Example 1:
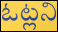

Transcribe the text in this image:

ఓట్లని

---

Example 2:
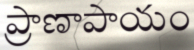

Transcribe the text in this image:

ప్రాణాపాయం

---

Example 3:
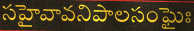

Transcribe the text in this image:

సహైవావనిపాలసంఘైః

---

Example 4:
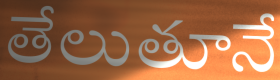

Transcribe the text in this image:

తేలుతూనే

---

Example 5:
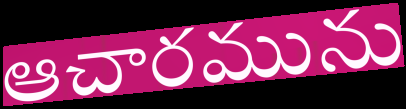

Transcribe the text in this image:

ఆచారమును